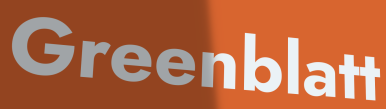
Greenblatt